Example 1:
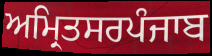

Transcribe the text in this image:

ਅਮ੍ਰਿਤਸਰਪੰਜਾਬ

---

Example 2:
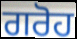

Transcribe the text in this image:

ਗਰੋਹ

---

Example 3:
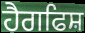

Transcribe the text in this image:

ਹੈਗਫਿਸ਼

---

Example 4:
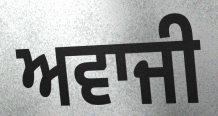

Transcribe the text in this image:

ਅਵਾਜੀ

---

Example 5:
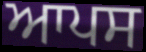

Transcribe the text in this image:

ਆਪਸ